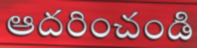
ఆదరించండి